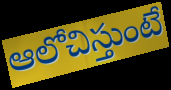
ఆలోచిస్తుంటే